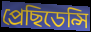
প্ৰেছিডেন্সি